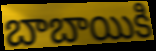
బాబాయికి